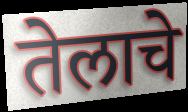
तेलाचे